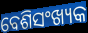
ବେଶିସଂଖ୍ୟକ